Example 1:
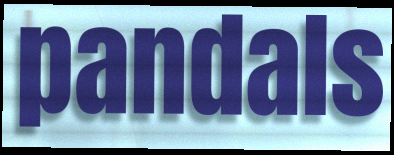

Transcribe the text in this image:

pandals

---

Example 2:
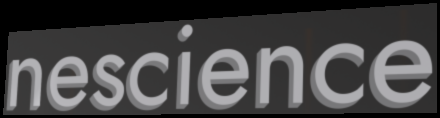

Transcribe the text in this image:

nescience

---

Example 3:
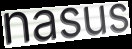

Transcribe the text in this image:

nasus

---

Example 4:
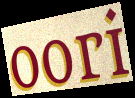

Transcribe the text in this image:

oori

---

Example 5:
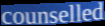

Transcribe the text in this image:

counselled